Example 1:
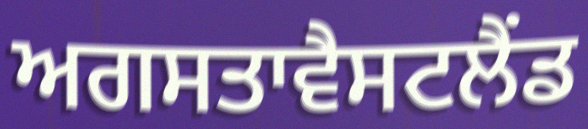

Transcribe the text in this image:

ਅਗਸਤਾਵੈਸਟਲੈਂਡ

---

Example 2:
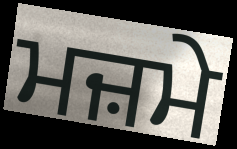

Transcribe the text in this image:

ਮਜ਼ਮੇ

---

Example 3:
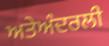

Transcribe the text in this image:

ਅਤੇਅੰਦਰਲੀ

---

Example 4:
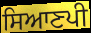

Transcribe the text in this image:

ਸਿਆਣਪੀ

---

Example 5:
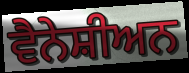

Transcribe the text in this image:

ਵੈਨੇਸ਼ੀਅਨ